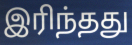
இரிந்தது